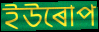
ইউৰোপ